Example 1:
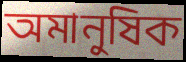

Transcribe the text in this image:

অমানুষিক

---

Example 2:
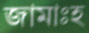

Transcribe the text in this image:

জামাঃহ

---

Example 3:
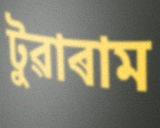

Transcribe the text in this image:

টুৱাৰাম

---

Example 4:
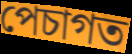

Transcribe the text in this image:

পেচাগত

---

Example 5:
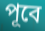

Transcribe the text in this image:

পূবে